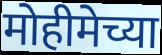
मोहीमेच्या